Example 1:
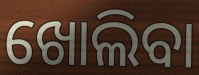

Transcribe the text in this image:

ଖୋଲିବା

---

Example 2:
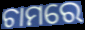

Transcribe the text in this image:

ଚାମରେ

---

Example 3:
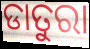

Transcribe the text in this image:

ଡାତୁରା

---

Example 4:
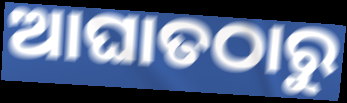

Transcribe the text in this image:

ଆଘାତଠାରୁ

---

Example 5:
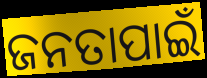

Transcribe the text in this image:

ଜନତାପାଇଁ